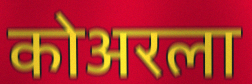
कोअरला